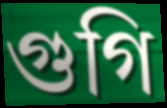
গুগি